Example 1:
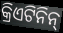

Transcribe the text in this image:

କ୍ରିଏଟିନିନ୍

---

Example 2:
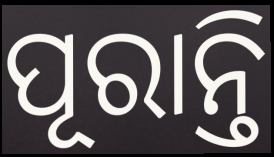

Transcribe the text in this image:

ପୂରାନ୍ତି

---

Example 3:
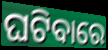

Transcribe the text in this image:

ଘଟିବାରେ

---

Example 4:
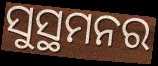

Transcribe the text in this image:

ସୁସ୍ଥମନର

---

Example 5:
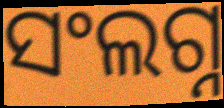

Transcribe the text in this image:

ସଂଲଗ୍ନ